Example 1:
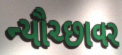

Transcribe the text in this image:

ન્યૌચ્છાવર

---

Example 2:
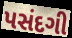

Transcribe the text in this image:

પસંદગી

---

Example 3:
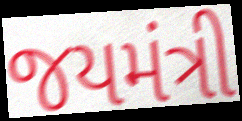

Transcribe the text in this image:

જયમંત્રી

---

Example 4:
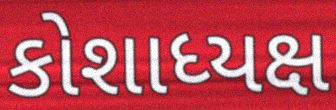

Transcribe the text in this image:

કોશાધ્યક્ષ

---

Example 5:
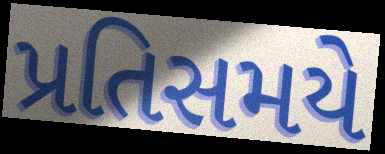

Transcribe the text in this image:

પ્રતિસમયે